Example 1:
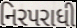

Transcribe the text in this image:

નિરપરાધી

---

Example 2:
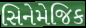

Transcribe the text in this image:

સિનેમેજિક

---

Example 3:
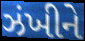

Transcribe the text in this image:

ઝંખીને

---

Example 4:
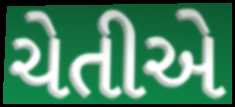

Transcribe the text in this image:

ચેતીએ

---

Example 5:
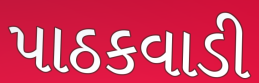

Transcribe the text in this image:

પાઠકવાડી